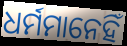
ଧର୍ମମାନେହିଁ